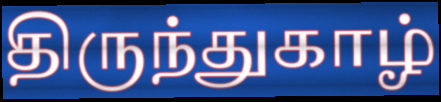
திருந்துகாழ்